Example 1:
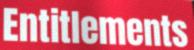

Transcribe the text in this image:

Entitlements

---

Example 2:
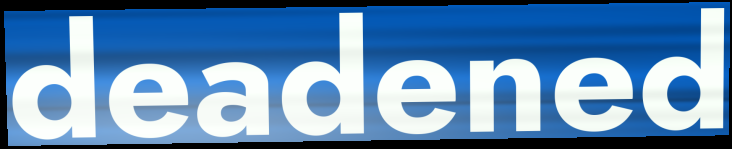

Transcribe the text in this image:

deadened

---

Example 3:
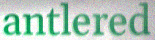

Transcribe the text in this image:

antlered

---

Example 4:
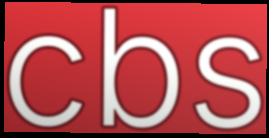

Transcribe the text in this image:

cbs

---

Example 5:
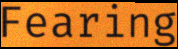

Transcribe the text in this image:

Fearing